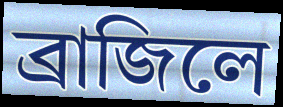
ব্রাজিলে